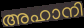
അഹാനി